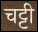
चट्टी